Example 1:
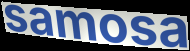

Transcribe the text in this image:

samosa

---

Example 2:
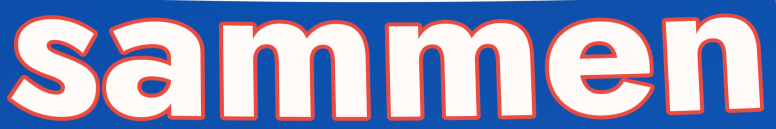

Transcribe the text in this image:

sammen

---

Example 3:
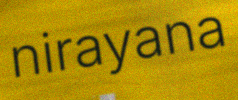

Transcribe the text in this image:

nirayana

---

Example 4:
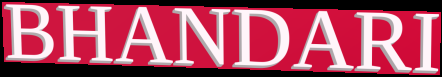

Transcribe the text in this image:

BHANDARI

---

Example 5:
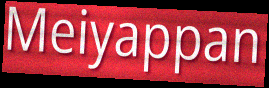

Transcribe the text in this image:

Meiyappan